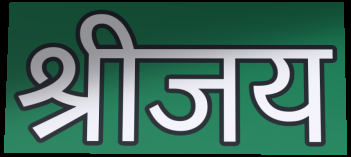
श्रीजय